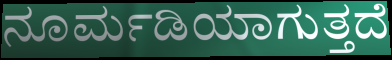
ನೂರ್ಮಡಿಯಾಗುತ್ತದೆ